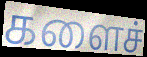
களைச்